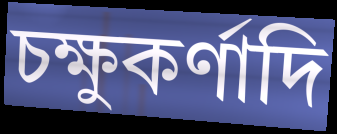
চক্ষুকর্ণাদি